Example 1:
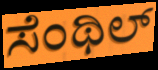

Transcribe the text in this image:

ಸೆಂಥಿಲ್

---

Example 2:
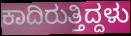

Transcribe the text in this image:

ಕಾದಿರುತ್ತಿದ್ದಳು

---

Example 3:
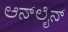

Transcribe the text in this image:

ಆನ್‌ಲೈನ್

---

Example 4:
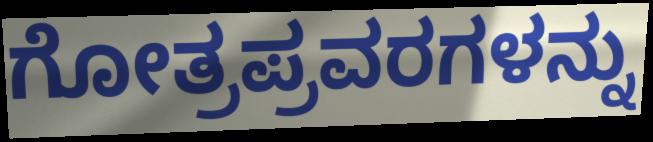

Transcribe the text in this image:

ಗೋತ್ರಪ್ರವರಗಳನ್ನು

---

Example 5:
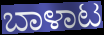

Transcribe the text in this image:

ಬಾಳಾಟ